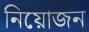
নিয়োজন